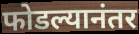
फोडल्यानंतर